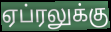
ஏப்ரலுக்கு